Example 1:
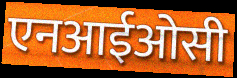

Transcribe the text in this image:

एनआईओसी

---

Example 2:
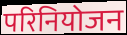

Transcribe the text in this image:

परिनियोजन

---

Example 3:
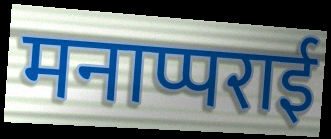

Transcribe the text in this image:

मनाप्पराई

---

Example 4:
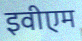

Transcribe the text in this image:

इवीएम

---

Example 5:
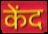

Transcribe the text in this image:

केंद